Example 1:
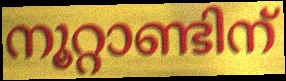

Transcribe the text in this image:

നൂറ്റാണ്ടിന്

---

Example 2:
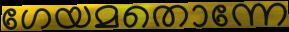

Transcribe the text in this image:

ഗേയമതൊന്നേ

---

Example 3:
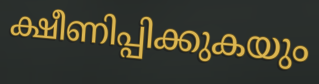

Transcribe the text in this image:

ക്ഷീണിപ്പിക്കുകയും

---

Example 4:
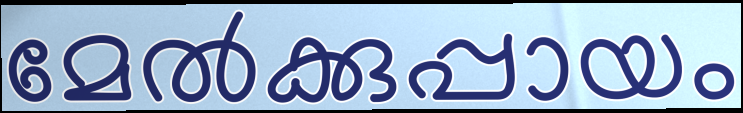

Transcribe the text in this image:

മേൽക്കുപ്പായം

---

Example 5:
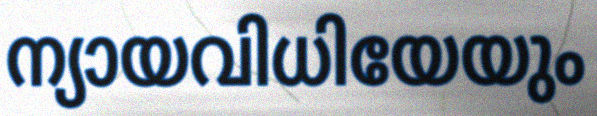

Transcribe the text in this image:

ന്യായവിധിയേയും